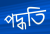
পদ্ধতি